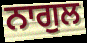
ਨਾਗੁਲ